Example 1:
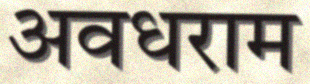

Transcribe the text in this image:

अवधराम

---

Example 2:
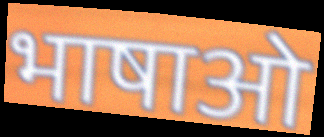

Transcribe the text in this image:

भाषाओ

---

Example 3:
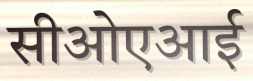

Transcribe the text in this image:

सीओएआई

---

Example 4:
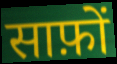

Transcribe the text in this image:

साफ़ों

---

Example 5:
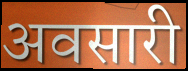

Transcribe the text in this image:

अवसारी